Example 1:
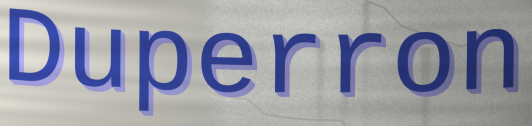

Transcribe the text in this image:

Duperron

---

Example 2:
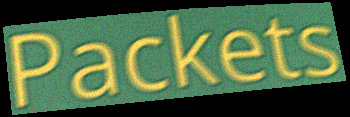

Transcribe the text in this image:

Packets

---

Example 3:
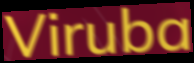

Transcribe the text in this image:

Viruba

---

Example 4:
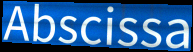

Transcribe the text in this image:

Abscissa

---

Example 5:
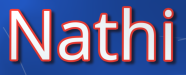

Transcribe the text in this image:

Nathi